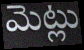
మెట్లు